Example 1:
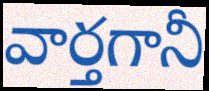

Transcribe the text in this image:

వార్తగానీ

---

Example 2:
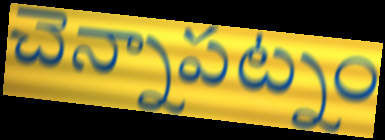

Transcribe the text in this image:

చెన్నాపట్నం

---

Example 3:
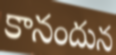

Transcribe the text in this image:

కానందున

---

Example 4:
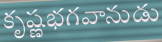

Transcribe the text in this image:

కృష్ణభగవానుడు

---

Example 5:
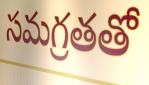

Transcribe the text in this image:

సమగ్రతతో